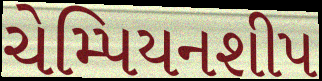
ચેમ્પિયનશીપ